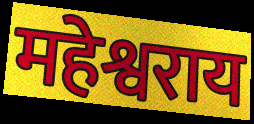
महेश्वराय